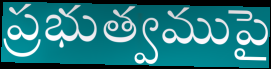
ప్రభుత్వముపై